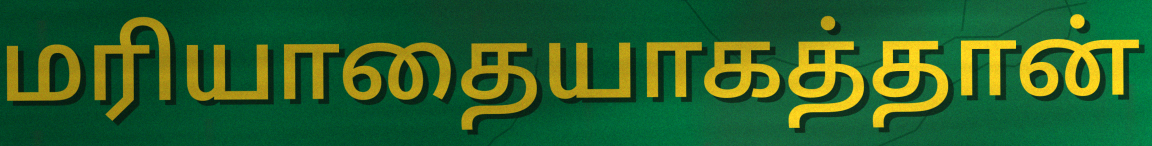
மரியாதையாகத்தான்